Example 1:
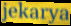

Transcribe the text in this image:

jekarya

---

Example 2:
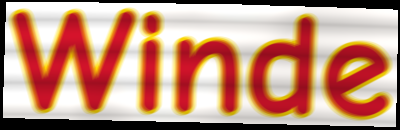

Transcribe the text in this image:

Winde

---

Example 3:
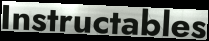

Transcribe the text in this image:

Instructables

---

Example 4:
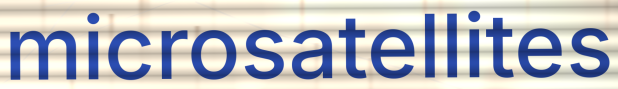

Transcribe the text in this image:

microsatellites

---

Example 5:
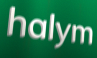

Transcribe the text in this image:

halym